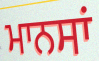
ਮਾਨਸਾਂ